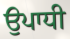
ਉਪਾਧੀ